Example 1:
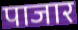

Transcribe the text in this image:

पाजार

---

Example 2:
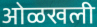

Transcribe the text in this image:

ओळखली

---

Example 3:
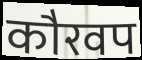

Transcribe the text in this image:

कौरवप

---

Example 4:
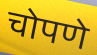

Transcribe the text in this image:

चोपणे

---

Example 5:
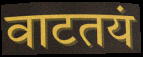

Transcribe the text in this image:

वाटतयं